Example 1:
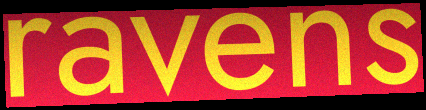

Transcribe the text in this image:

ravens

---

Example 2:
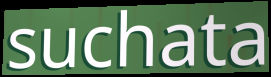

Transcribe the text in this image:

suchata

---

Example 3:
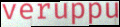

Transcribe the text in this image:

veruppu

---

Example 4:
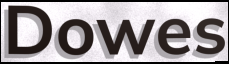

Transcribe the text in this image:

Dowes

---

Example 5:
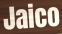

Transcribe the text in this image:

Jaico